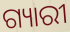
ଗ୍ୟାରୀ